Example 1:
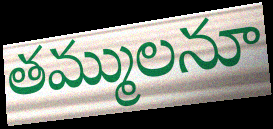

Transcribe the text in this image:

తమ్ములనూ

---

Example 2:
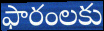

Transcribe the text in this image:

ఫారంలకు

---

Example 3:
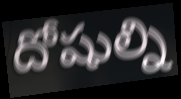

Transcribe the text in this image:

దోషుల్ని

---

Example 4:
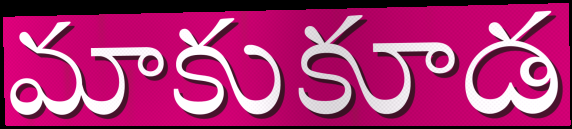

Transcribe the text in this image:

మాకుకూడ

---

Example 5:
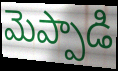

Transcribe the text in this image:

మెప్పాడి